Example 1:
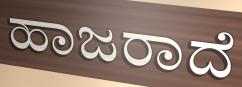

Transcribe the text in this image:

ಹಾಜರಾದೆ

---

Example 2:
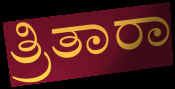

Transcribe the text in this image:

ತ್ರಿತಾರಾ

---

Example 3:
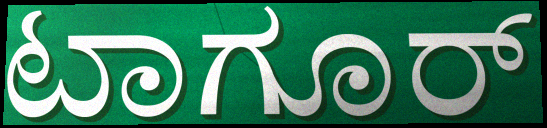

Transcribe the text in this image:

ಟಾಗೂರ್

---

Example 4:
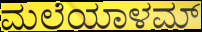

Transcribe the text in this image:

ಮಲೆಯಾಳಮ್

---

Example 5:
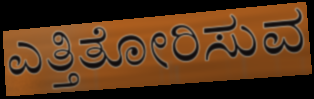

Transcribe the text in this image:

ಎತ್ತಿತೋರಿಸುವ